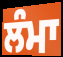
ਲੰਮਾ